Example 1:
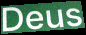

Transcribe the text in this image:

Deus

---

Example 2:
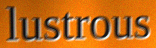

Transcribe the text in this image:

lustrous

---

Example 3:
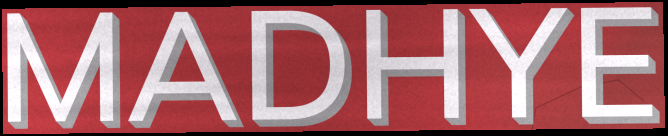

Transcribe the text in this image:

MADHYE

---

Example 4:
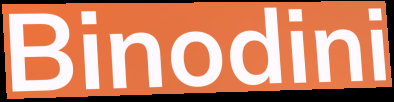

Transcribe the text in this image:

Binodini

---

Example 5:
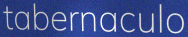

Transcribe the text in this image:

tabernaculo